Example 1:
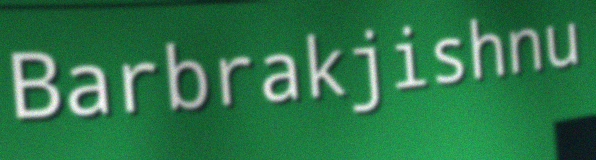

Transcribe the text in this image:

Barbrakjishnu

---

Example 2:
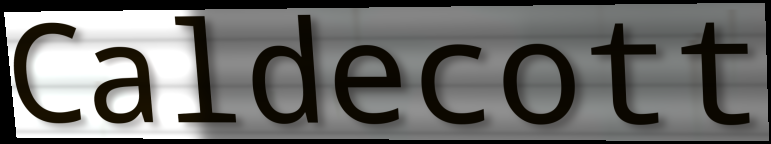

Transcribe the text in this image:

Caldecott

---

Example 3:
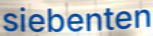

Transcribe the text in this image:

siebenten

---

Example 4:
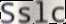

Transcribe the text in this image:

Sslc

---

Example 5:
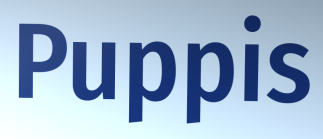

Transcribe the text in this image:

Puppis